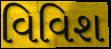
વિવિશ